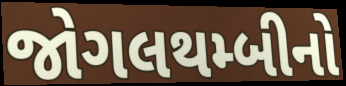
જોગલથમ્બીનો